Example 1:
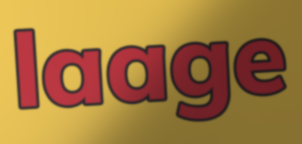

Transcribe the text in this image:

laage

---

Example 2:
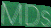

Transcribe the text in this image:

MDs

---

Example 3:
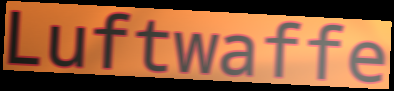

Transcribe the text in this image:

Luftwaffe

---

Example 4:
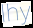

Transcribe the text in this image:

lhy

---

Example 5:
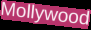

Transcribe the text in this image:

Mollywood